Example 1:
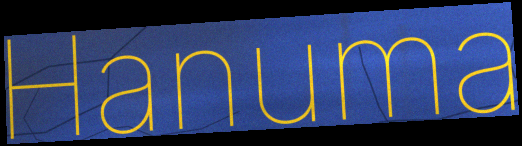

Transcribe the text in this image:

Hanuma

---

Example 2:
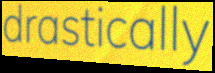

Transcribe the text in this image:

drastically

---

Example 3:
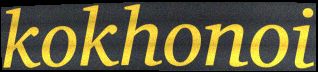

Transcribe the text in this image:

kokhonoi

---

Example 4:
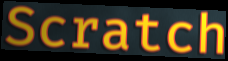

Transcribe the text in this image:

Scratch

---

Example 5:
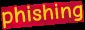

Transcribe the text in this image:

phishing